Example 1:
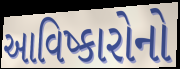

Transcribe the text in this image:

આવિષ્કારોનો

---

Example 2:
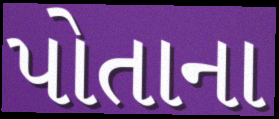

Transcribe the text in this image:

પોતાના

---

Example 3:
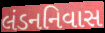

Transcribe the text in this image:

લંડનનિવાસ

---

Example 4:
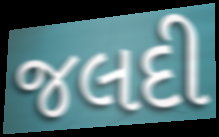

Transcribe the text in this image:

જલદી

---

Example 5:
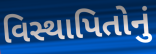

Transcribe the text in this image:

વિસ્થાપિતોનું